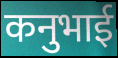
कनुभाई